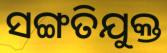
ସଙ୍ଗତିଯୁକ୍ତ